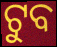
ଟୁବ